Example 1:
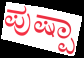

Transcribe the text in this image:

ಪುಷ್ಪಾ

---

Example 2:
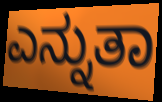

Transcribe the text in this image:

ಎನ್ನುತಾ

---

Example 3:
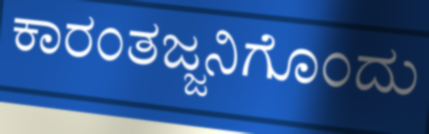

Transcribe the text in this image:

ಕಾರಂತಜ್ಜನಿಗೊಂದು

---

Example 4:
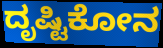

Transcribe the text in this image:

ದೃಷ್ಟಿಕೋನ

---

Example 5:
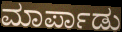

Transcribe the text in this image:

ಮಾರ್ಪಾಡು